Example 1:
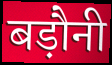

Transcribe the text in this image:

बड़ौनी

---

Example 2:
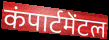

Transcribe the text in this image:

कंपार्टमेंटल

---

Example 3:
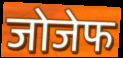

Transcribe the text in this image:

जोजेफ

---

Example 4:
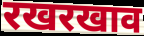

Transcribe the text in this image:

रखरखाव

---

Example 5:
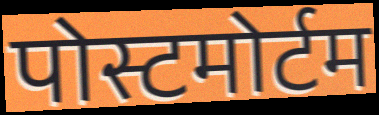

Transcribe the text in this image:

पोस्टमोर्टम